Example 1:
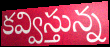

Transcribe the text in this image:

కవ్విస్తున్న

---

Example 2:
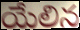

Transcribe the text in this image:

యేలిన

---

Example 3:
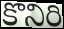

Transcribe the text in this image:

కొనిరి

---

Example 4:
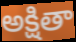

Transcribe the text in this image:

అక్షితా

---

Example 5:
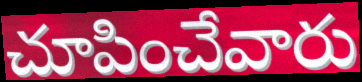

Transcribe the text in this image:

చూపించేవారు